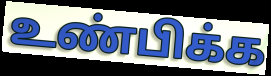
உண்பிக்க